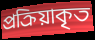
প্রক্রিয়াকৃত